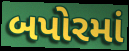
બપોરમાં